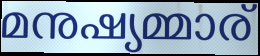
മനുഷ്യമ്മാര്